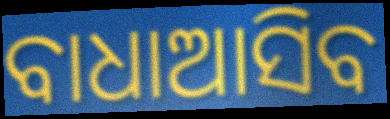
ବାଧାଆସିବ